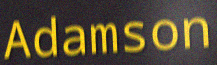
Adamson